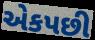
એકપછી